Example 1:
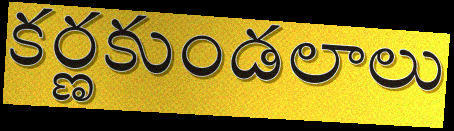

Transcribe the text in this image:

కర్ణకుండలాలు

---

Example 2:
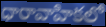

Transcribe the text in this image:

ధారావాహికలో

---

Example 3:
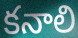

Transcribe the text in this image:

కనాలి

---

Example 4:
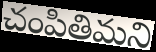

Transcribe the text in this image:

చంపితిమని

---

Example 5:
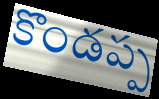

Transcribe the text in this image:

కొండప్ప